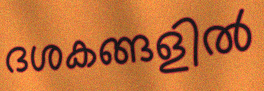
ദശകങ്ങളിൽ